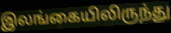
இலங்கையிலிருந்து